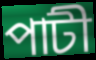
পাটী